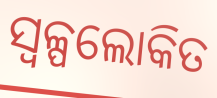
ସ୍ୱଳ୍ପଲୋକିତ